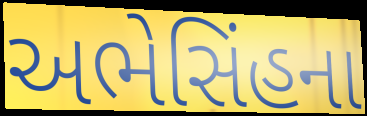
અભેસિંહના